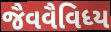
જૈવવૈવિધ્ય